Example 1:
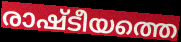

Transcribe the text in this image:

രാഷ്ടീയത്തെ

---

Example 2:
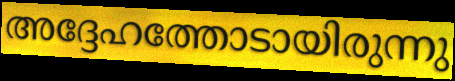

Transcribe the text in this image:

അദ്ദേഹത്തോടായിരുന്നു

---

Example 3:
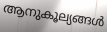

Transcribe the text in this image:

ആനുകൂല്യങ്ങൾ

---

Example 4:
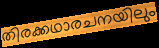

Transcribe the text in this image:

തിരക്കഥാരചനയിലും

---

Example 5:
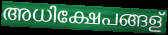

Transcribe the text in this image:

അധിക്ഷേപങ്ങള്